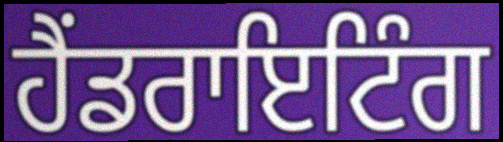
ਹੈਂਡਰਾਇਟਿੰਗ